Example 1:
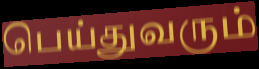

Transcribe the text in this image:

பெய்துவரும்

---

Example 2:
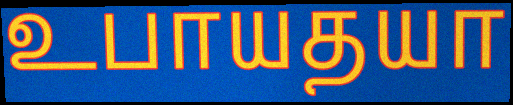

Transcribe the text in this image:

உபாயதயா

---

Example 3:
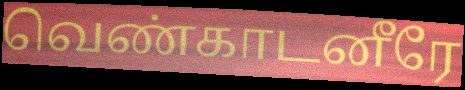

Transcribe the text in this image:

வெண்காடனீரே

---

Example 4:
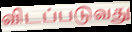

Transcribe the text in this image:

விடப்படுவது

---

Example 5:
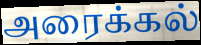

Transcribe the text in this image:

அரைக்கல்